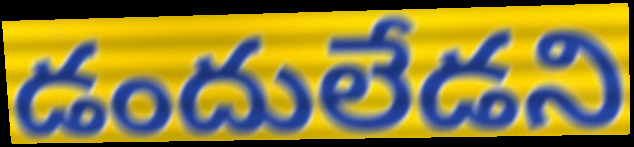
డందులేడని